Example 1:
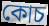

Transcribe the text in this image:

কোচ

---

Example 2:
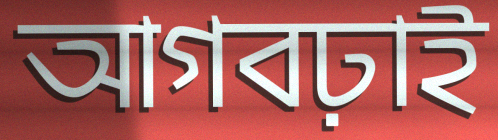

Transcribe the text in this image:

আগবঢ়াই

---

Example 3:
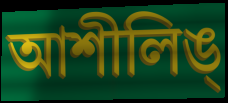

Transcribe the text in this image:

আশীলিঙ্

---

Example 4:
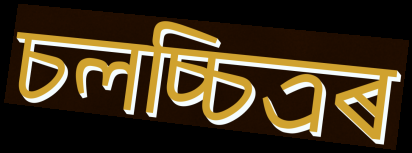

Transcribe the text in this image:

চলচ্চিত্ৰৰ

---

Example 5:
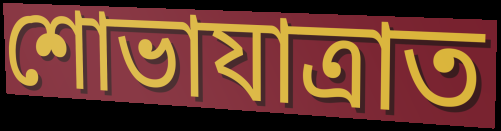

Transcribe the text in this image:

শোভাযাত্ৰাত